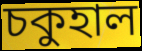
চকুহাল